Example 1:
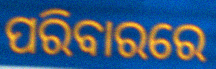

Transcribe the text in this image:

ପରିବାରରେ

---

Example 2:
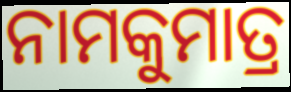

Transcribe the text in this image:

ନାମକୁମାତ୍ର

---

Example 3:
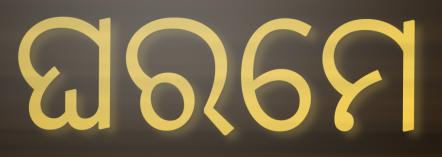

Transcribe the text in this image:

ଘରମେ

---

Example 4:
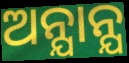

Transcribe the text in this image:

ଅନ୍ଯାନ୍ଯ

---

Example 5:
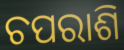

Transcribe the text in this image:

ଚପରାଶି